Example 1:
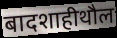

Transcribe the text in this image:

बादशाहीथौल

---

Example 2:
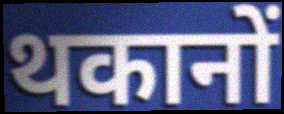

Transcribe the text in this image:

थकानों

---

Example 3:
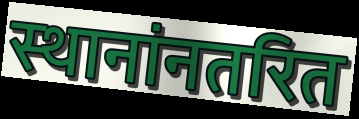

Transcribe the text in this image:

स्थानांनतरित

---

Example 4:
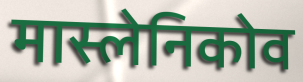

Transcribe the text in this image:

मास्लेनिकोव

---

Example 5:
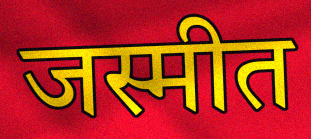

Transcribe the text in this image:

जस्मीत